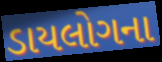
ડાયલોગના